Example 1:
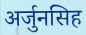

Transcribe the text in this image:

अर्जुनसिह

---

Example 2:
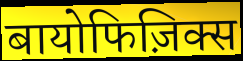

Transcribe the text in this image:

बायोफिज़िक्स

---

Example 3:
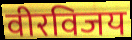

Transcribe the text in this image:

वीरविजय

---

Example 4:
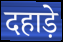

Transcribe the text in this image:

दहाड़े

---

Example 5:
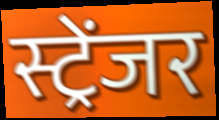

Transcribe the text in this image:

स्ट्रेंजर